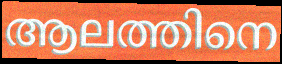
ആലത്തിനെ